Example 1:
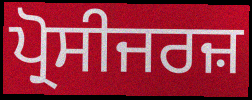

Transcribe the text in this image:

ਪ੍ਰੋਸੀਜਰਜ਼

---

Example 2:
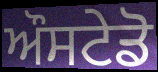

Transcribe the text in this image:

ਔਸਟੇਡੋ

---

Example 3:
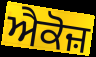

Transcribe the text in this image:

ਐਕੋਜ਼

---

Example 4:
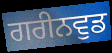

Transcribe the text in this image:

ਗਰੀਨਵੁਡ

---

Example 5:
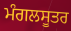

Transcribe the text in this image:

ਮੰਗਲਸੂਤਰ